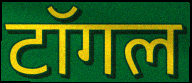
टॉगल